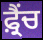
ਫ਼੍ਰੈਂਚ